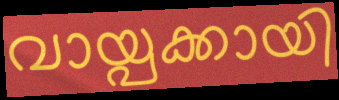
വായ്പക്കായി